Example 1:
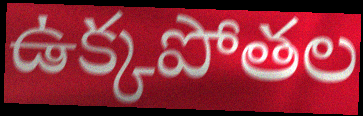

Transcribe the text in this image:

ఉక్కపోతల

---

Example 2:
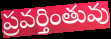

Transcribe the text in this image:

ప్రవర్తింతువు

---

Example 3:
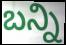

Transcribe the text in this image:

బన్ని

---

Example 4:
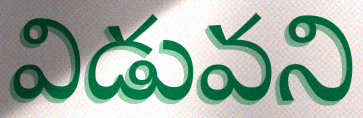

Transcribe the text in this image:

విడువని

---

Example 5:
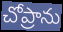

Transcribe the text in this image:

చోప్రాను